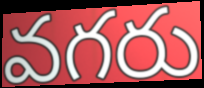
వగరు